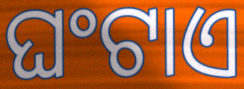
ଘଂଟାଏ